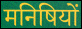
मनिषियों